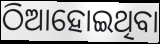
ଠିଆହୋଇଥିବା